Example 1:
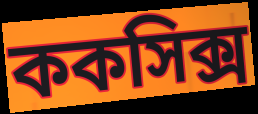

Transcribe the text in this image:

ককসিক্স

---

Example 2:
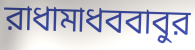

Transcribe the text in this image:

রাধামাধববাবুর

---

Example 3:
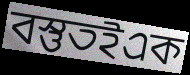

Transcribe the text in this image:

বস্তুতইএক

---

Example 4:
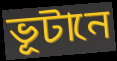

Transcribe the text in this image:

ভূটানে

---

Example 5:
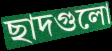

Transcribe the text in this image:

ছাদগুলো